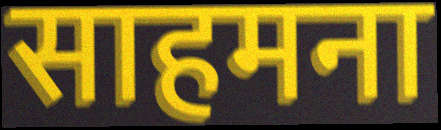
साहमना